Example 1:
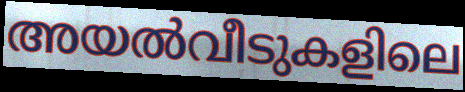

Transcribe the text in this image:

അയൽവീടുകളിലെ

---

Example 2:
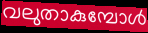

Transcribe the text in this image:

വലുതാകുമ്പോൾ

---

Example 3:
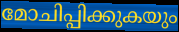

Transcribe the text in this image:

മോചിപ്പിക്കുകയും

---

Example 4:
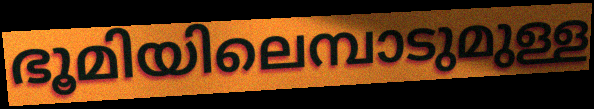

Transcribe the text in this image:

ഭൂമിയിലെമ്പാടുമുള്ള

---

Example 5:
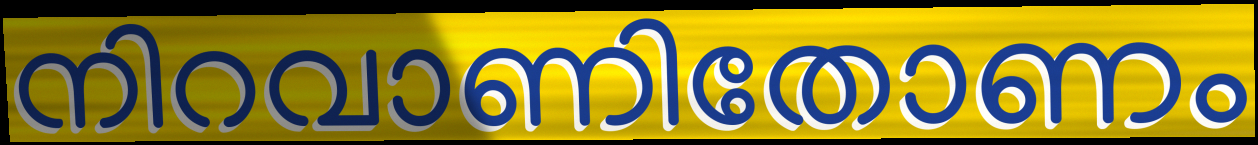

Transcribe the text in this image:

നിറവാണിതോണം